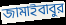
জামাইবাবুর